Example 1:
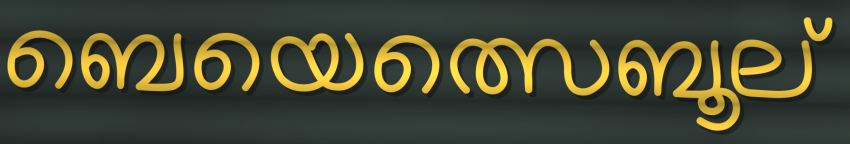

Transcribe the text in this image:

ബെയെത്സെബൂല്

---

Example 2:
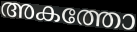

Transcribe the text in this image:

അകത്തോ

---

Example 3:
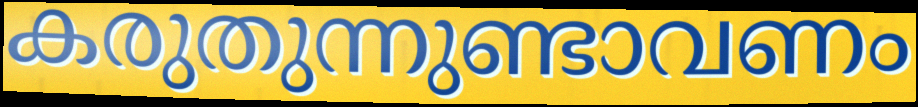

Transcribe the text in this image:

കരുതുന്നുണ്ടാവണം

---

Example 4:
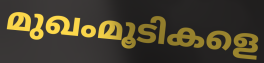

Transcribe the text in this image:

മുഖംമൂടികളെ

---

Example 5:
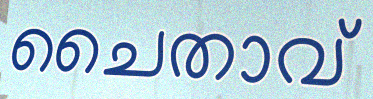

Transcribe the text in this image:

ചൈതാവ്